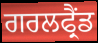
ਗਰਲਫ੍ਰੈਂਡ